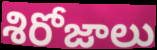
శిరోజాలు